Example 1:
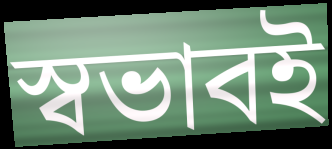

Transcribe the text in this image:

স্বভাবই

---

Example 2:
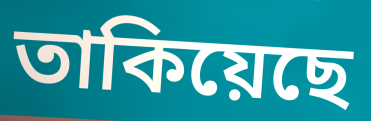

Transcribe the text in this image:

তাকিয়েছে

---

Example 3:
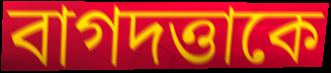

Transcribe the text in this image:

বাগদত্তাকে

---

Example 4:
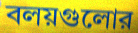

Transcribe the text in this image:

বলয়গুলোর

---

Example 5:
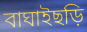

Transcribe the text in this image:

বাঘাইছড়ি